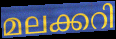
മലക്കറി